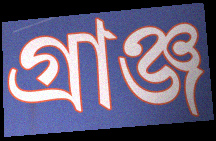
গ্রাঞ্জ